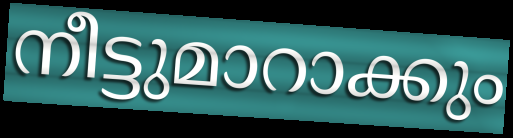
നീട്ടുമാറാക്കും